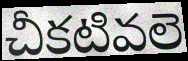
చీకటివలె